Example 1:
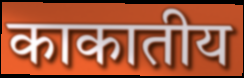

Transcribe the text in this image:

काकातीय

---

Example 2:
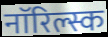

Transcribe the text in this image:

नॉरिल्स्क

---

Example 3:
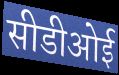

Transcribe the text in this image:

सीडीओई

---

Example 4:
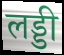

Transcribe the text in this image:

लड्डी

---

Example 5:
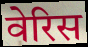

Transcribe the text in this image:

वेरिस